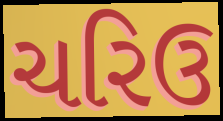
ચરિઉ